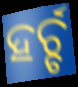
ହର୍ଚ୍ଚ